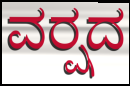
ವರ್‍ಷದ